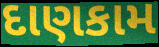
દાણકામ